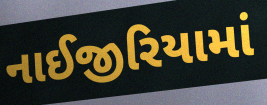
નાઈજીરિયામાં